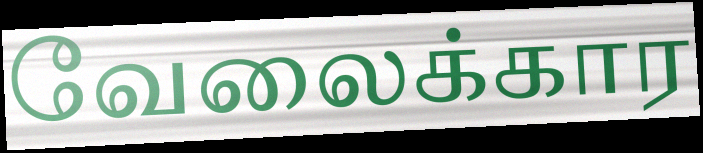
வேலைக்கார